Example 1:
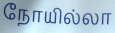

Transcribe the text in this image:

நோயில்லா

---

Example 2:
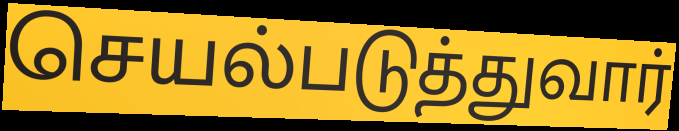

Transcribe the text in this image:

செயல்படுத்துவார்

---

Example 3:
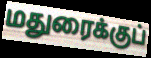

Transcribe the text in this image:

மதுரைக்குப்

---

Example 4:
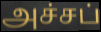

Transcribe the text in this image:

அச்சப்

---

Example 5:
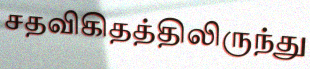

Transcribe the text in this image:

சதவிகிதத்திலிருந்து